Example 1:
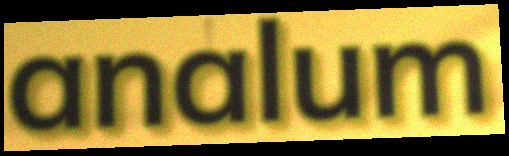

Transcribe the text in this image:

analum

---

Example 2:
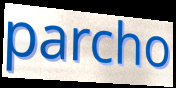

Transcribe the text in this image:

parcho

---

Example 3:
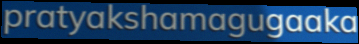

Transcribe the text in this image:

pratyakshamagugaaka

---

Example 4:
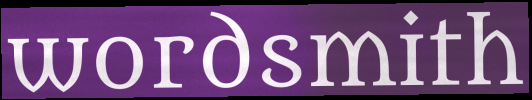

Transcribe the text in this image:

wordsmith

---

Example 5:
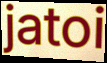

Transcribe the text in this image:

jatoi